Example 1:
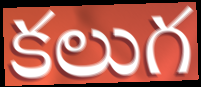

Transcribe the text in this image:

కలుగ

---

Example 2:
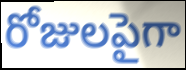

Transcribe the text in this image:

రోజులపైగా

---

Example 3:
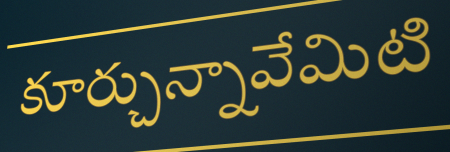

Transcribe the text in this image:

కూర్చున్నావేమిటి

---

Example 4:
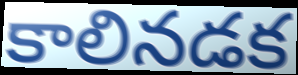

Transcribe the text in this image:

కాలినడక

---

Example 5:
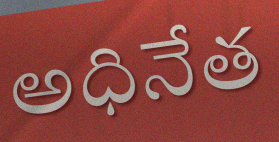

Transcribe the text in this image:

అధినేత